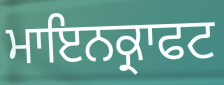
ਮਾਇਨਕ੍ਰਾਫਟ